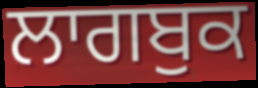
ਲਾਗਬੁਕ